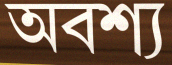
অবশ্য